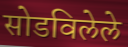
सोडविलेले